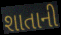
શાતાની